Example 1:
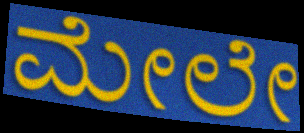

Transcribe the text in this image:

ಮೇಲೇ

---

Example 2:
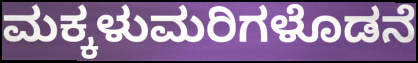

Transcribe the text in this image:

ಮಕ್ಕಳುಮರಿಗಳೊಡನೆ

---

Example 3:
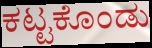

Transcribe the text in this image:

ಕಟ್ಟಕೊಂಡು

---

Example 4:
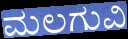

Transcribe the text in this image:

ಮಲಗುವಿ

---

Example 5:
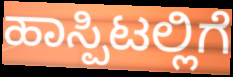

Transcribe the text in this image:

ಹಾಸ್ಪಿಟಲ್ಲಿಗೆ